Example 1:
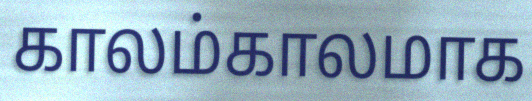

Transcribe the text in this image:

காலம்காலமாக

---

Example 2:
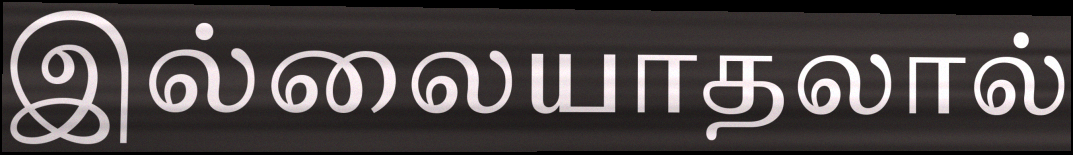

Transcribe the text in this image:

இல்லையாதலால்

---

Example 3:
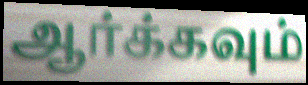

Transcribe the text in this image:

ஆர்க்கவும்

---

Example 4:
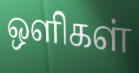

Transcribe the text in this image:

ஒளிகள்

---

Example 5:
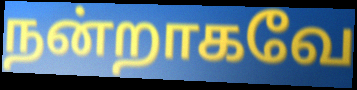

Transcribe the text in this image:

நன்றாகவே